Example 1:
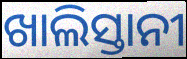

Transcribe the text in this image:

ଖାଲିସ୍ତାନୀ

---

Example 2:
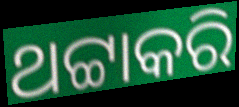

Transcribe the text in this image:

ଥଟ୍ଟାକରି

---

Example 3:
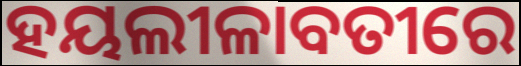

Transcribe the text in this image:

ହୟଲୀଳାବତୀରେ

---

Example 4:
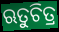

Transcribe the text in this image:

ଋତୁଚିତ୍ର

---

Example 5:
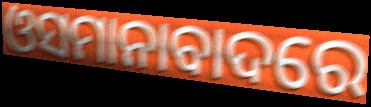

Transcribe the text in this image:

ଓସମାନାବାଦରେ